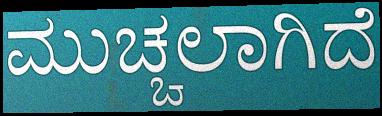
ಮುಚ್ಚಲಾಗಿದೆ